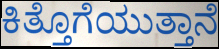
ಕಿತ್ತೊಗೆಯುತ್ತಾನೆ